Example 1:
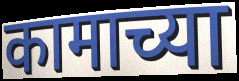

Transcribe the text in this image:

कामाच्या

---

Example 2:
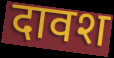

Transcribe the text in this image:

दावश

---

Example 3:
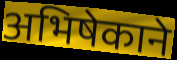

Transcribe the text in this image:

अभिषेकाने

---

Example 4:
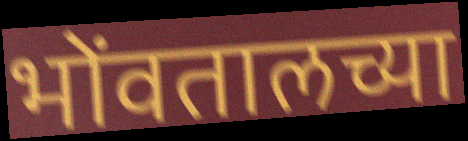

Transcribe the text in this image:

भोंवतालच्या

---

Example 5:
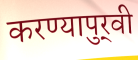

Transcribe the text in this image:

करण्यापुर्वी